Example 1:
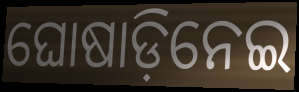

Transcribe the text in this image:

ଘୋଷାଡ଼ିନେଇ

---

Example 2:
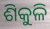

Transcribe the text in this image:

ଶିକୁଳି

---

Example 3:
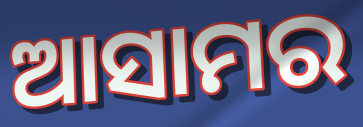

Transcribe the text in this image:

ଆସାମର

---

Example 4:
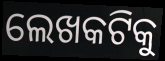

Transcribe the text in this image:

ଲେଖକଟିକୁ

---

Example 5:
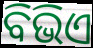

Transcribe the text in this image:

ବିଭିଏ